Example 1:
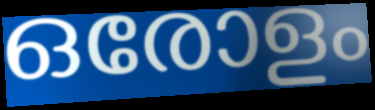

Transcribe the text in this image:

ഒരോളം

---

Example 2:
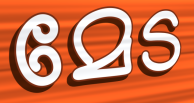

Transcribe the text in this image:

മേട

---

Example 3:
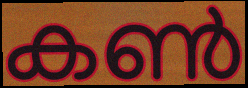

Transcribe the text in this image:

കൺ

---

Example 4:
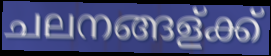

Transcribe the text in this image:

ചലനങ്ങള്ക്ക്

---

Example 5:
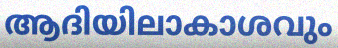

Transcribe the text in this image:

ആദിയിലാകാശവും